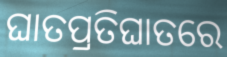
ଘାତପ୍ରତିଘାତରେ